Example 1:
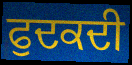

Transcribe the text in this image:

ਫੁਦਕਦੀ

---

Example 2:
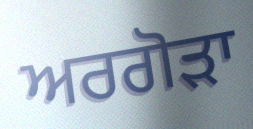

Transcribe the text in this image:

ਅਰਗੋੜਾ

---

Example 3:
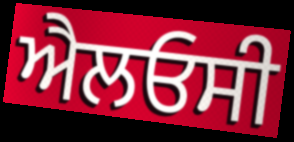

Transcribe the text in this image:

ਐਲਓਸੀ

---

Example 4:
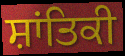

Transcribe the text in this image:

ਸ਼ਾਂਤਿਕੀ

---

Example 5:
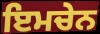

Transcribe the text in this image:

ਇਮਚੇਨ